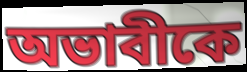
অভাবীকে